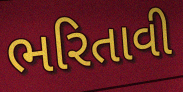
ભરિતાવી